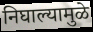
निघाल्यामुळे